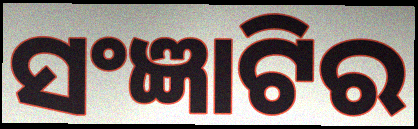
ସଂଜ୍ଞାଟିର